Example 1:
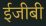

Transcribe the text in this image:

ईजीबी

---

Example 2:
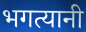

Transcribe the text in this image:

भगत्यानी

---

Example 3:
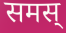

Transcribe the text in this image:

समस्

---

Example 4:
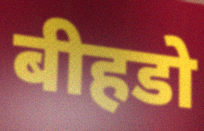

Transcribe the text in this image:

बीहडो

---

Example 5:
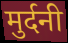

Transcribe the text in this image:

मुर्दनी